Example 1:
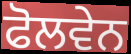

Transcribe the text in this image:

ਫੋਲਵੇਨ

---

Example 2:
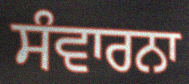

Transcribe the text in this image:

ਸੰਵਾਰਨਾ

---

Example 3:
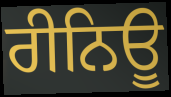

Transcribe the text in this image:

ਰੀਨਿਊ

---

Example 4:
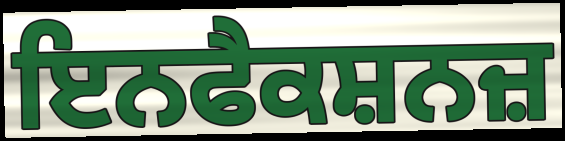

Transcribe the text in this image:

ਇਨਫੈਕਸ਼ਨਜ਼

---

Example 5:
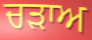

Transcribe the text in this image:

ਚੜਾਅ